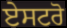
ਏਸਟਰੋ